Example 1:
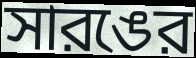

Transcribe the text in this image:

সারঙের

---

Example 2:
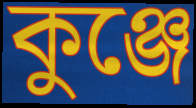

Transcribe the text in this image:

কুঞ্জে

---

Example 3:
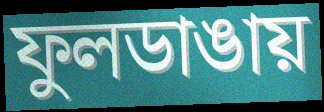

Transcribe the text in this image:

ফুলডাঙায়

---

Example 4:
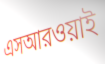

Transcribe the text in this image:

এসআরওয়াই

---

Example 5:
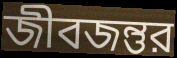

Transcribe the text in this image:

জীবজন্তুর